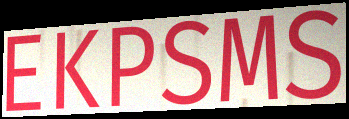
EKPSMS